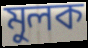
মুলক